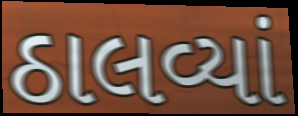
ઠાલવ્યાં